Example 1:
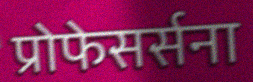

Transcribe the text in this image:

प्रोफेसर्सना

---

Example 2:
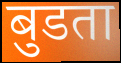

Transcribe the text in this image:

बुडता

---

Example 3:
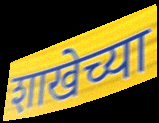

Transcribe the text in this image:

शाखेच्या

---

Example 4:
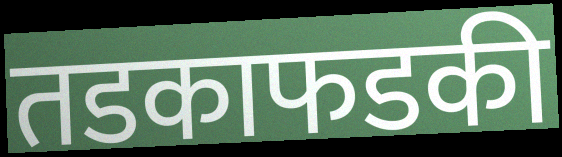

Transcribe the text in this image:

तडकाफडकी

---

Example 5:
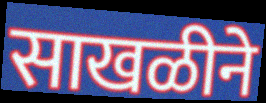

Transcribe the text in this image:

साखळीने